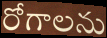
రోగాలను